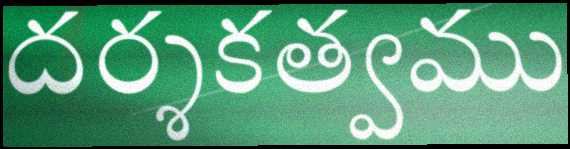
దర్శకత్వము